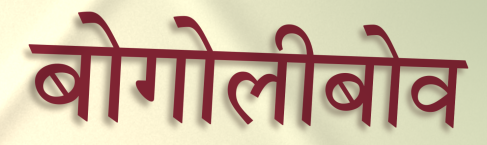
बोगोलीबोव